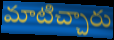
మాటిచ్చారు